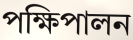
পক্ষিপালন